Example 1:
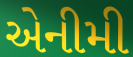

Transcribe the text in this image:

એનીમી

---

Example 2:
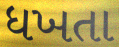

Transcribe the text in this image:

ધખતા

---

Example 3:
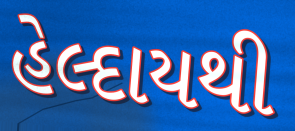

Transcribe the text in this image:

હેલ્દાયથી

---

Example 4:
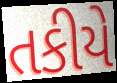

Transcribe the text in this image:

તકીયે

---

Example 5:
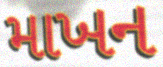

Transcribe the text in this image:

માખન